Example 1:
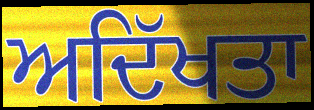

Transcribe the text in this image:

ਅਦਿੱਖਤਾ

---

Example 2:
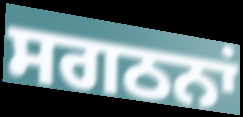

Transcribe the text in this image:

ਸਗਠਨਾਂ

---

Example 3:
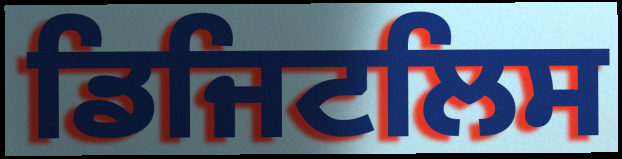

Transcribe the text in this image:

ਡਿਜਿਟਲਿਸ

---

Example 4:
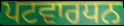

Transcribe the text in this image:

ਪਟਵਾਰਧਨ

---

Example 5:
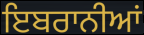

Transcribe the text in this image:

ਇਬਰਾਨੀਆਂ